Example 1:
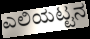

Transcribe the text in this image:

ಎಲಿಯಟ್ಟನ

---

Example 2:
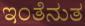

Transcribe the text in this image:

ಇಂತೆನುತ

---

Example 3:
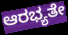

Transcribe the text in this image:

ಆರಭ್ಯತೇ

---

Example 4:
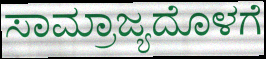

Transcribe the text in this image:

ಸಾಮ್ರಾಜ್ಯದೊಳಗೆ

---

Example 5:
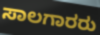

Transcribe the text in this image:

ಸಾಲಗಾರರು